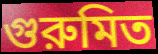
গুরুমিত